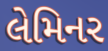
લેમિનર